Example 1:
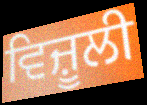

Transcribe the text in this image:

ਵਿਜ਼ੂਲੀ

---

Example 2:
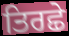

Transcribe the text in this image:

ਤਿਰਛੇ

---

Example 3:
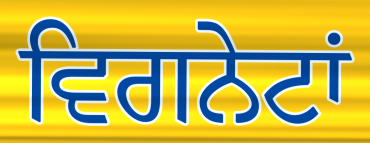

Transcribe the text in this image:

ਵਿਗਨੇਟਾਂ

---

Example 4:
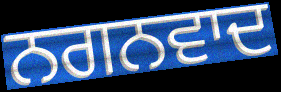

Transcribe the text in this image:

ਨਗਨਵਾਦ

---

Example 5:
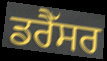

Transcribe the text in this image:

ਡਰੈੱਸਰ